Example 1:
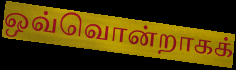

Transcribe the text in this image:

ஒவ்வொன்றாகக்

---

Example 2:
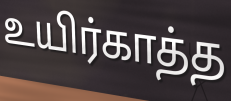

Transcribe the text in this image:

உயிர்காத்த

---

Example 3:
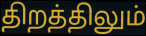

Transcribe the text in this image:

திறத்திலும்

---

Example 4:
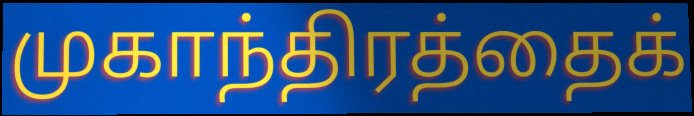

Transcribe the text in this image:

முகாந்திரத்தைக்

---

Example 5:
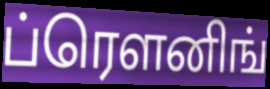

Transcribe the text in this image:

ப்ரௌனிங்